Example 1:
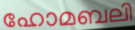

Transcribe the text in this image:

ഹോമബലി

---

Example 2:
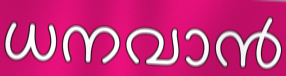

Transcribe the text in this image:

ധനവാൻ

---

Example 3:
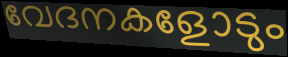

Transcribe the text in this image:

വേദനകളോടും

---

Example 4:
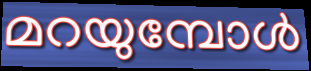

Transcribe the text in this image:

മറയുമ്പോൾ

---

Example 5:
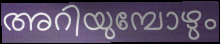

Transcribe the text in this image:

അറിയുമ്പോഴും